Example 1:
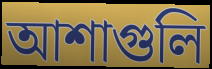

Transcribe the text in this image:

আশাগুলি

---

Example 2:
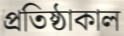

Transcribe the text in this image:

প্রতিষ্ঠাকাল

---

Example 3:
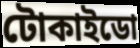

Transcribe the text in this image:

টোকাইডো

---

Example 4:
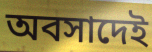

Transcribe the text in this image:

অবসাদেই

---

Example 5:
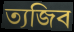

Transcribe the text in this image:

ত্যজিব